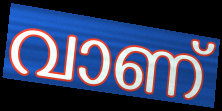
വാണ്